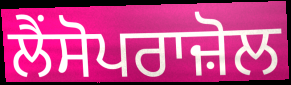
ਲੈਂਸੋਪਰਾਜ਼ੋਲ